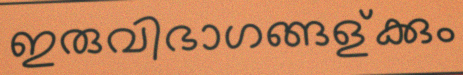
ഇരുവിഭാഗങ്ങള്ക്കും